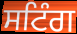
ਸਟਿੰਗ